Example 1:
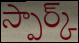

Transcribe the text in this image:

స్పార్క్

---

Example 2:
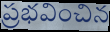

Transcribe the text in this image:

ప్రభవించిన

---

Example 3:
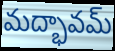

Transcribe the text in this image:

మద్భావమ్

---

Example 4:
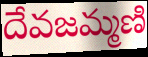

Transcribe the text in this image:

దేవజమ్మణి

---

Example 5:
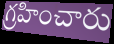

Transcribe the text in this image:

గ్రహించారు